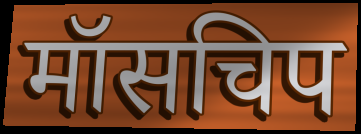
मॉसचिप